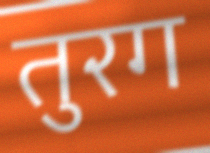
तुरग